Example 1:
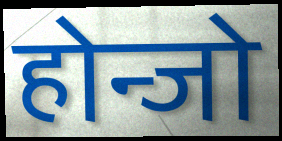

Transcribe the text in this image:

होन्जो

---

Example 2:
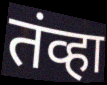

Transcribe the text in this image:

तंव्हा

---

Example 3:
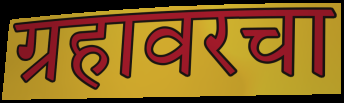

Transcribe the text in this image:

ग्रहावरचा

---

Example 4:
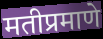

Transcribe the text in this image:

मतीप्रमाणे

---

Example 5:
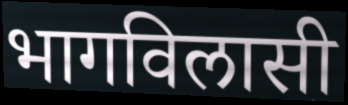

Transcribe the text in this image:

भागविलासी